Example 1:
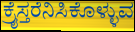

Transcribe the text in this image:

ಕ್ರೈಸ್ತರೆನಿಸಿಕೊಳ್ಳುವ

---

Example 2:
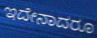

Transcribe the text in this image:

ಇದೇನಾದರೂ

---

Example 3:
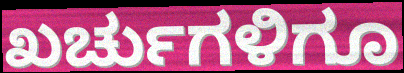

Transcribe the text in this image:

ಖರ್ಚುಗಳಿಗೂ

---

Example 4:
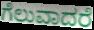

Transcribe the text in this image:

ಗೆಲುವಾದರೆ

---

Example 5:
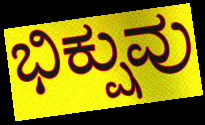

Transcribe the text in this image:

ಭಿಕ್ಷುವು